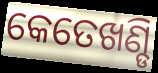
କେତେଖଣ୍ଡି